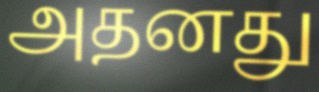
அதனது